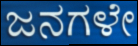
ಜನಗಳೇ